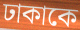
ঢাকাকে